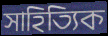
সাহিত্যিক